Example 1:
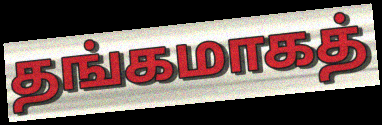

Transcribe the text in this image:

தங்கமாகத்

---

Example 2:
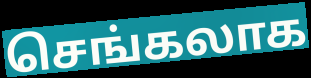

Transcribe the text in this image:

செங்கலாக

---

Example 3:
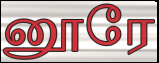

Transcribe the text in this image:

னூரே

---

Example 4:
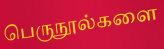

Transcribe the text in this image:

பெருநூல்களை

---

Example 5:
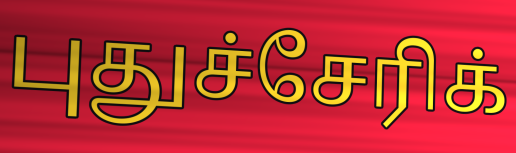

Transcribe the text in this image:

புதுச்சேரிக்